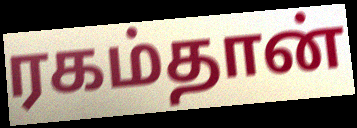
ரகம்தான்